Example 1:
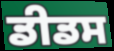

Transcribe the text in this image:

ਡੀਡਸ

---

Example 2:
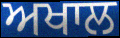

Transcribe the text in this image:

ਅਖਾਲ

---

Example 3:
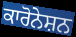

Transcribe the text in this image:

ਕਾਰੋਨੇਸ਼ਨ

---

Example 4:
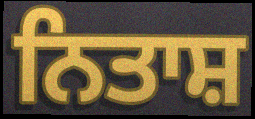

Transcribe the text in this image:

ਨਿਤਾਸ਼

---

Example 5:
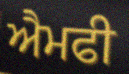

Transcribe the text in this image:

ਐਮਫੀ